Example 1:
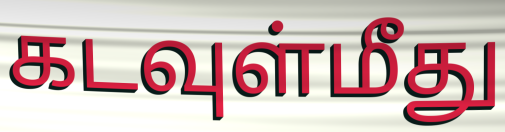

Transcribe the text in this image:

கடவுள்மீது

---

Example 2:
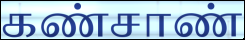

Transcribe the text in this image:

கண்சாண்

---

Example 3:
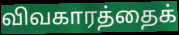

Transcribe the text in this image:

விவகாரத்தைக்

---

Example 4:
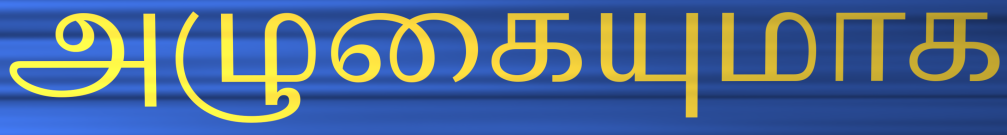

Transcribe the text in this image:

அழுகையுமாக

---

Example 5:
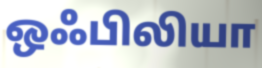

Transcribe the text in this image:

ஒஃபிலியா